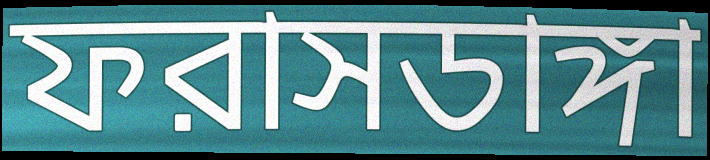
ফরাসডাঙ্গা